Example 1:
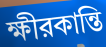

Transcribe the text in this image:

ক্ষীরকান্তি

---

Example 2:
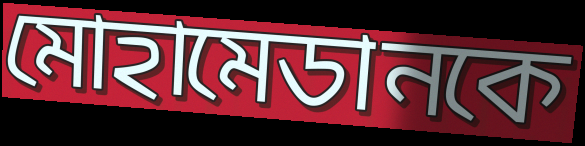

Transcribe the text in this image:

মোহামেডানকে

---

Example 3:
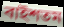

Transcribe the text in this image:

বাইশতম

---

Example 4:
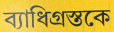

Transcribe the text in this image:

ব্যাধিগ্রস্তকে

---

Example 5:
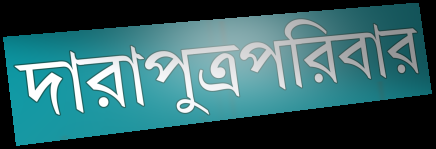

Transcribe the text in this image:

দারাপুত্রপরিবার